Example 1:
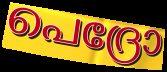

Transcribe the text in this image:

പെദ്രോ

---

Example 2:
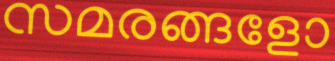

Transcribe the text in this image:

സമരങ്ങളോ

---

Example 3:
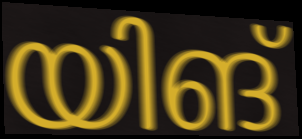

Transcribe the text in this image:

യിങ്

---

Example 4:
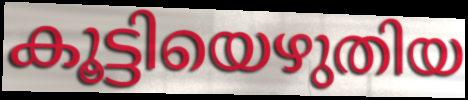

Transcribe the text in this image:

കൂട്ടിയെഴുതിയ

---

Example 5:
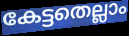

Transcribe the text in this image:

കേട്ടതെല്ലാം